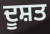
ਦੂਸ਼ਤ